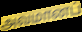
அவமானப்